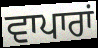
ਵਾਪਾਰਾਂ